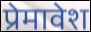
प्रेमावेश